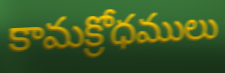
కామక్రోధములు